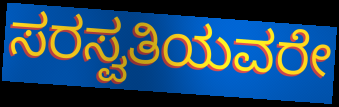
ಸರಸ್ವತಿಯವರೇ